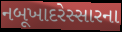
નબૂખાદરેસ્સારના